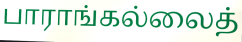
பாராங்கல்லைத்